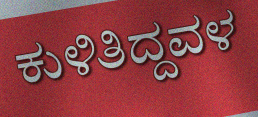
ಕುಳಿತಿದ್ದವಳ